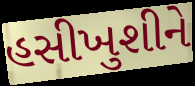
હસીખુશીને